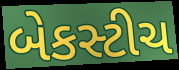
બેકસ્ટીચ